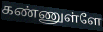
கண்ணுள்ளே